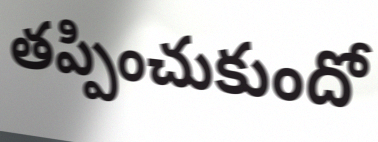
తప్పించుకుందో